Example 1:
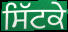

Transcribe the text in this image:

ਸਿੱਟਕੇ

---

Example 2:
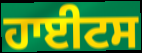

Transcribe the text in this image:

ਹਾਈਟਸ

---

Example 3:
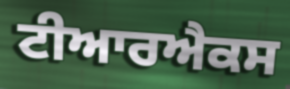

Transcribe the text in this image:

ਟੀਆਰਐਕਸ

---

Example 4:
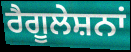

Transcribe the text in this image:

ਰੈਗੂਲੇਸ਼ਨਾਂ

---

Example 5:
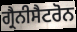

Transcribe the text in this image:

ਗ੍ਰੈਨੀਸੈਟਰੋਨ